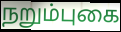
நறும்புகை